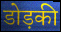
डोड़की